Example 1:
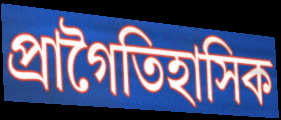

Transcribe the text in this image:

প্রাগৈতিহাসিক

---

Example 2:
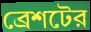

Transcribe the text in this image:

ব্রেশটের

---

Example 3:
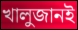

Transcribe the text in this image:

খালুজানই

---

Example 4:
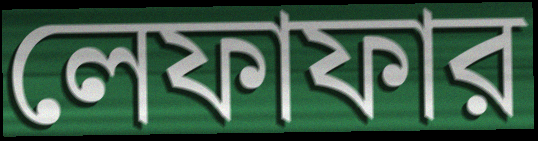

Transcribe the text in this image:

লেফাফার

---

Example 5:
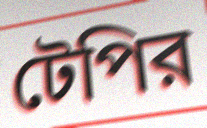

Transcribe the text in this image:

টেপির